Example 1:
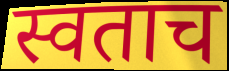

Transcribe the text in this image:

स्वताच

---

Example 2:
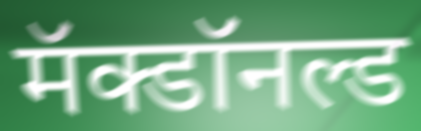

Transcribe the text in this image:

मॅक्डॉनल्ड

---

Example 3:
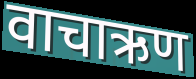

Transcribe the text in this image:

वाचाऋण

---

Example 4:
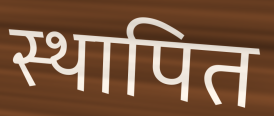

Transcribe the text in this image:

स्थापित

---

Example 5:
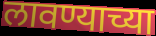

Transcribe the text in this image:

लावण्याच्या